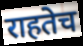
राहतेच